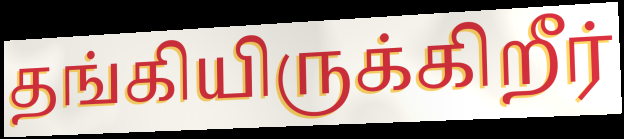
தங்கியிருக்கிறீர்